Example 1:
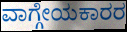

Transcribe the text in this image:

ವಾಗ್ಗೇಯಕಾರರ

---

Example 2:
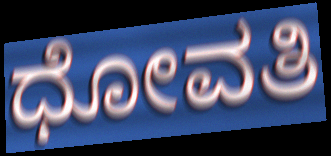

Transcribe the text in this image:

ಧೋವತಿ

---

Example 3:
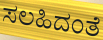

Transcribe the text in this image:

ಸಲಹಿದಂತೆ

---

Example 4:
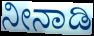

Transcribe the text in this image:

ನೀನಾಡಿ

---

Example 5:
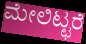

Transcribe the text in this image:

ಮೇಲಿಟ್ಟರೆ